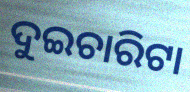
ଦୁଇଚାରିଟା